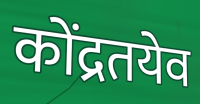
कोंद्रतयेव